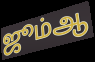
ஜூம்ஆ